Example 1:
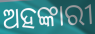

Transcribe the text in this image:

ଅହଙ୍କାରୀ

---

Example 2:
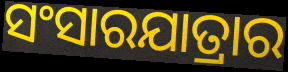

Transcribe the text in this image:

ସଂସାରଯାତ୍ରାର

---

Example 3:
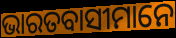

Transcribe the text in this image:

ଭାରତବାସୀମାନେ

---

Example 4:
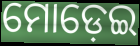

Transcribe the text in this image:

ମୋଡ଼େଇ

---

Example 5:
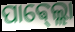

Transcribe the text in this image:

ପାଵ୍ଲ୍ଲୋ